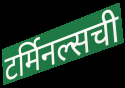
टर्मिनल्सची